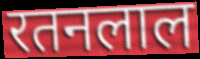
रतनलाल